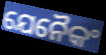
ଯେନୈକଂ